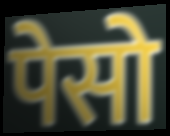
पेसो